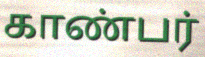
காண்பர்